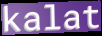
kalat